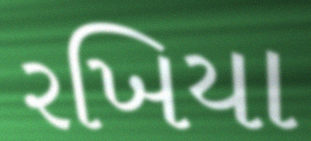
રખિયા